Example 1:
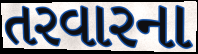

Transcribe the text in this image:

તરવારના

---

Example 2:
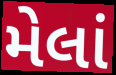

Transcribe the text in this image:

મેલાં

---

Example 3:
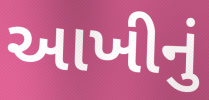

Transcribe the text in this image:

આખીનું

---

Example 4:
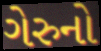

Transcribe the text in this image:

ગેરુનો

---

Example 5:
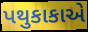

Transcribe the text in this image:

પથુકાકાએ